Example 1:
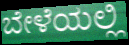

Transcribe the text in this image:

ಬೇಳೆಯಲ್ಲಿ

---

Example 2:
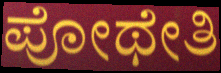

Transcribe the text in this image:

ಪೋಥೇತಿ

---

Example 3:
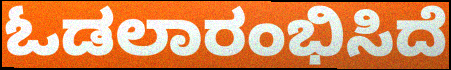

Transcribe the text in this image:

ಓಡಲಾರಂಭಿಸಿದೆ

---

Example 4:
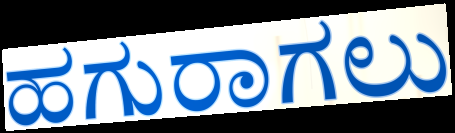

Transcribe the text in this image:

ಹಗುರಾಗಲು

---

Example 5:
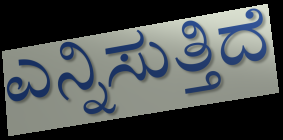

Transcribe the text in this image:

ಎನ್ನಿಸುತ್ತಿದೆ